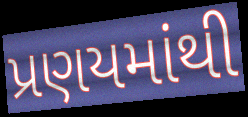
પ્રણયમાંથી